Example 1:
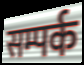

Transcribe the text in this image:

सम्‍पर्क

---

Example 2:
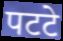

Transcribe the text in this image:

पटटे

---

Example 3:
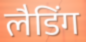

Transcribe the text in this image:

लैडिंग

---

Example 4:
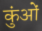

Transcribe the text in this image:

कुंओं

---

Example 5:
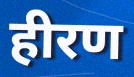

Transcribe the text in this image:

हीरण